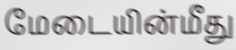
மேடையின்மீது